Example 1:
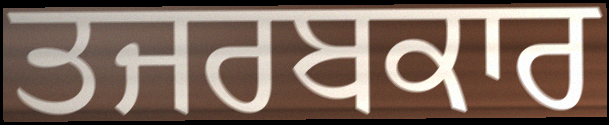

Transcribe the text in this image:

ਤਜਰਬਕਾਰ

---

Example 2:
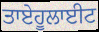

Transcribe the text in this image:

ਤਾਏਹੂਲਾਈਟ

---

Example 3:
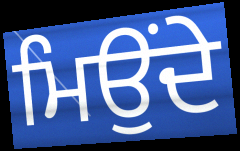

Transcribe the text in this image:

ਮਿਉਂਦੇ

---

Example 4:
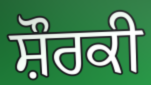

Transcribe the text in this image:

ਸ਼ੌਰਕੀ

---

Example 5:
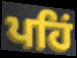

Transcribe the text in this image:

ਪਹਿਂ